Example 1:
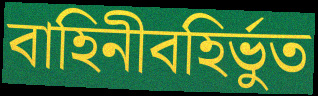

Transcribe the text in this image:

বাহিনীবহির্ভুত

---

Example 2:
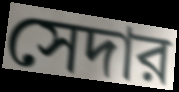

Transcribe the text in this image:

সেদার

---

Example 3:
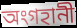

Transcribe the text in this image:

অংগহানী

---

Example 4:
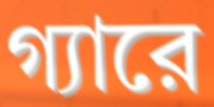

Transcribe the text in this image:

গ্যারে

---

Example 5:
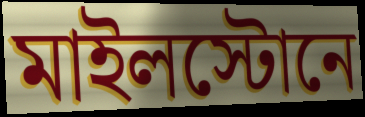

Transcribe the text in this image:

মাইলস্টোনে